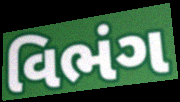
વિભંગ